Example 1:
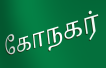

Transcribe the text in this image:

கோநகர்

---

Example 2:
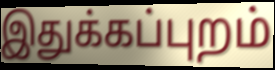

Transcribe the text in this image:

இதுக்கப்புறம்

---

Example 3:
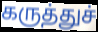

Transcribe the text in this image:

கருத்துச்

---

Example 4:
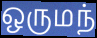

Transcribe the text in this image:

ஒருமந்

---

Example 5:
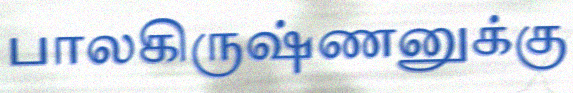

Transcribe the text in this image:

பாலகிருஷ்ணனுக்கு